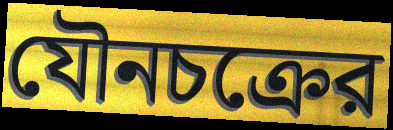
যৌনচক্রের